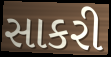
સાકરી